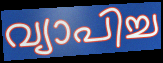
വ്യാപിച്ച